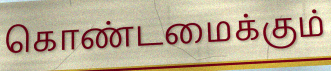
கொண்டமைக்கும்